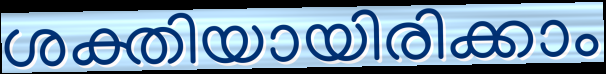
ശക്തിയായിരിക്കാം